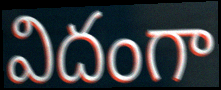
విదంగా